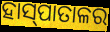
ହାସ୍‍ପାତାଳର